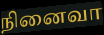
நினைவா